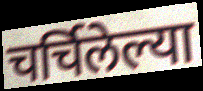
चर्चिलेल्या